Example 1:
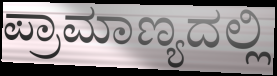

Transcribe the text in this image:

ಪ್ರಾಮಾಣ್ಯದಲ್ಲಿ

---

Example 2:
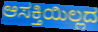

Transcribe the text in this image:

ಆಸಕ್ತಿಯಿಲ್ಲದ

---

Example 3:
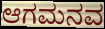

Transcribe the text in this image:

ಆಗಮನವ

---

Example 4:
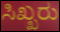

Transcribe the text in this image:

ಸಿಖ್ಖರು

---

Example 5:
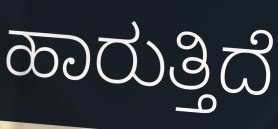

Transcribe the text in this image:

ಹಾರುತ್ತಿದೆ